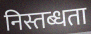
निस्तब्धता